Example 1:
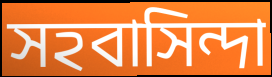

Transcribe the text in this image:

সহবাসিন্দা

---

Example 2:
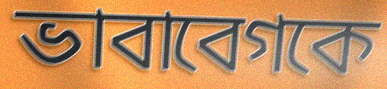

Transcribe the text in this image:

ভাবাবেগকে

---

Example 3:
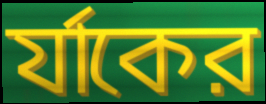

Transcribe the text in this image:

র্যাকের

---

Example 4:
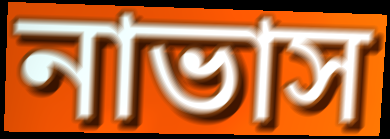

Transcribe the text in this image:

নাভাস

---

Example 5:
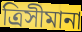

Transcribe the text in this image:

ত্রিসীমানা